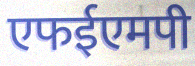
एफईएमपी